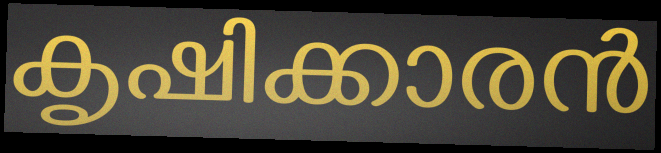
കൃഷിക്കാരൻ